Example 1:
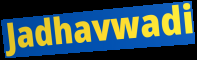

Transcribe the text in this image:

Jadhavwadi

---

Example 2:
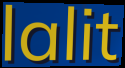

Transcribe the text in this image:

lalit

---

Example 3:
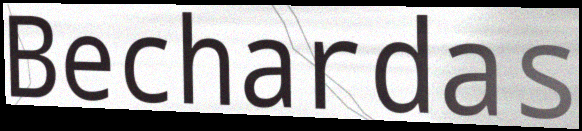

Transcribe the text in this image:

Bechardas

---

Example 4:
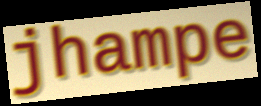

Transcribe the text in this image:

jhampe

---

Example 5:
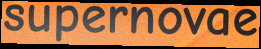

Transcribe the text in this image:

supernovae